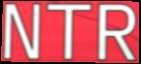
NTR